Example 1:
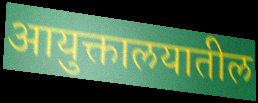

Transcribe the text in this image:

आयुक्तालयातील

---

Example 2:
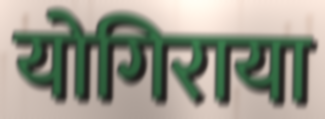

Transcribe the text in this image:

योगिराया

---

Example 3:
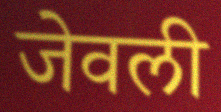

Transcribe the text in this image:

जेवली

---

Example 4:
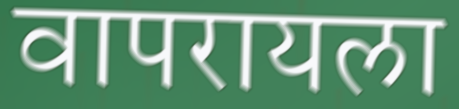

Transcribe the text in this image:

वापरायला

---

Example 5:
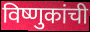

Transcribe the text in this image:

विष्णुकांची